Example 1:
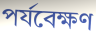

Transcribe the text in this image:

পর্যবেক্ষণ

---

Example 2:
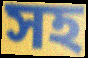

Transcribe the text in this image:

সহ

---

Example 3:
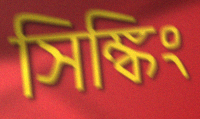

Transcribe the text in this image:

সিঙ্কিং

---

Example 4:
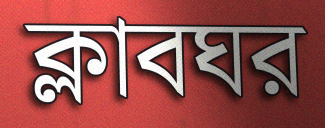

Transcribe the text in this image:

ক্লাবঘর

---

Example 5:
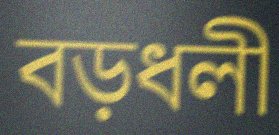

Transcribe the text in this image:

বড়ধলী